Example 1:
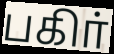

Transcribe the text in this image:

பகிர்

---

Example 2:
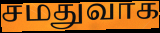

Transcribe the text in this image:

சமதுவாக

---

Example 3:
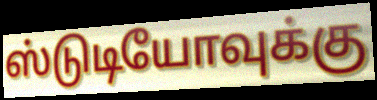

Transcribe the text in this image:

ஸ்டுடியோவுக்கு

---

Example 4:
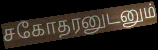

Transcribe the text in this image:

சகோதரனுடனும்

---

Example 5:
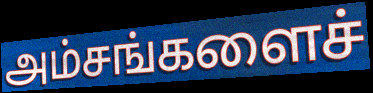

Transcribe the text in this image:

அம்சங்களைச்